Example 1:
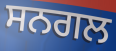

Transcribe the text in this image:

ਸਨਗਲ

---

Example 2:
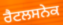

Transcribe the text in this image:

ਰੈਟਲਸਨੇਕ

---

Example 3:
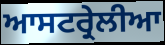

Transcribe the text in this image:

ਆਸਟਰ੍ਰੇਲੀਆ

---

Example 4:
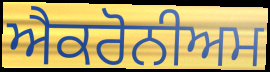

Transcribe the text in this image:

ਐਕਰੋਨੀਅਮ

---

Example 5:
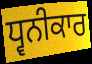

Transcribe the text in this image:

ਧ੍ਵਨੀਕਾਰ